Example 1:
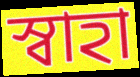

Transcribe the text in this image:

স্বাহা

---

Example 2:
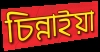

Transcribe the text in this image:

চিন্নাইয়া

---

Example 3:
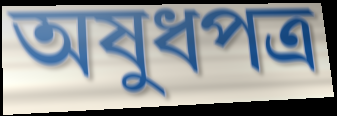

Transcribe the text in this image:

অষুধপত্র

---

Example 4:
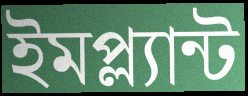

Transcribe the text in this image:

ইমপ্ল্যান্ট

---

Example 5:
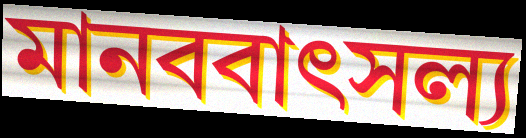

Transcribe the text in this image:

মানববাৎসল্য